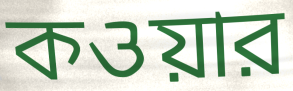
কওয়ার